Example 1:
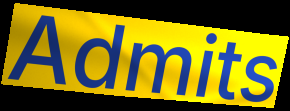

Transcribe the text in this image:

Admits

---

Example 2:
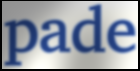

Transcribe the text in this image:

pade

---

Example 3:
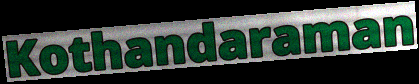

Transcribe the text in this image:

Kothandaraman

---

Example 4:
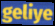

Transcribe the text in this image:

geliye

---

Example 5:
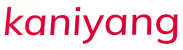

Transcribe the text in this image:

kaniyang